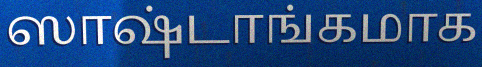
ஸாஷ்டாங்கமாக